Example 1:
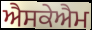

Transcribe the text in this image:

ਐਸਕੇਐਮ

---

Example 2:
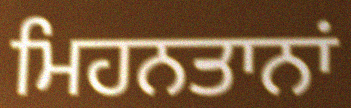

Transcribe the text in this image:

ਮਿਹਨਤਾਨਾਂ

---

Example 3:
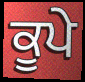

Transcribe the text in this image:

ਕੂਪੇ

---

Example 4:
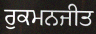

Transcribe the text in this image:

ਰੁਕਮਨਜੀਤ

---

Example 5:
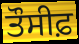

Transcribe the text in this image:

ਤੌਸੀਫ਼